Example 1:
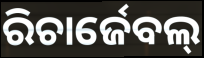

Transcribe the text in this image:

ରିଚାର୍ଜେବଲ୍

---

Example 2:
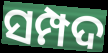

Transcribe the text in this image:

ସମ୍ପଦ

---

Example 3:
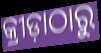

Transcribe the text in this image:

କ୍ରୀଡ଼ାଠାରୁ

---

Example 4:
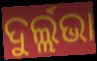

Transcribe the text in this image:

ଦୁର୍ଲ୍ଲଭା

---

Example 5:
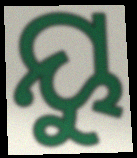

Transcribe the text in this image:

ୟୁ